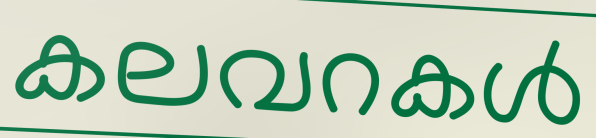
കലവറകൾ